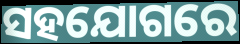
ସହଯୋଗରେ